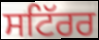
ਸਟਿੱਰਰ